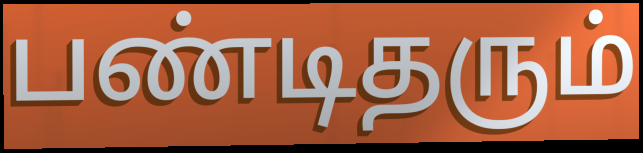
பண்டிதரும்